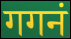
गगनं